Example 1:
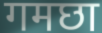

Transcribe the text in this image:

गमछा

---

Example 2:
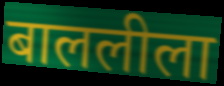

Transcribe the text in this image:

बाललीला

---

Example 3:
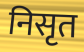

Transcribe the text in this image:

निसृत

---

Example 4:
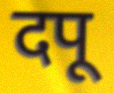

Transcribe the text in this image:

दपू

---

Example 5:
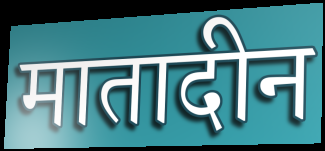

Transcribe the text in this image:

मातादीन